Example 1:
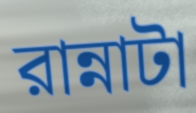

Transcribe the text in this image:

রান্নাটা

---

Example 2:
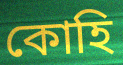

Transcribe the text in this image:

কোহি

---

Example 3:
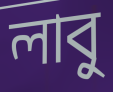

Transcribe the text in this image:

লাবু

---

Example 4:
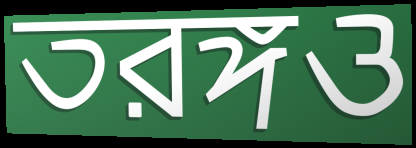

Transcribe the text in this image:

তরঙ্গও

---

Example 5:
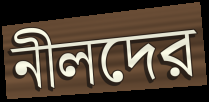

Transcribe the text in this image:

নীলদের